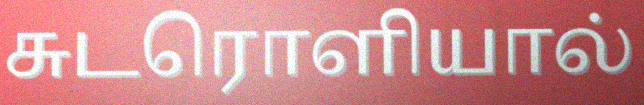
சுடரொளியால்